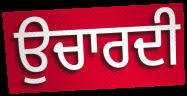
ਉਚਾਰਦੀ